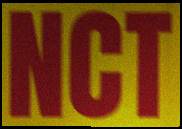
NCT